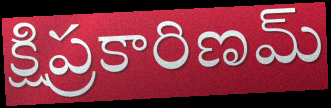
క్షిప్రకారిణమ్